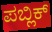
ಪಬ್ಲಿಕ್